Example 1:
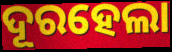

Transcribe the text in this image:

ଦୂରହେଲା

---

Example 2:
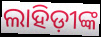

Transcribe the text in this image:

ଲାହିଡ଼ୀଙ୍କ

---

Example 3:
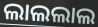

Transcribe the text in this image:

ଲାଲଲାଲ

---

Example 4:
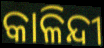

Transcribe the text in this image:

କାଳିନ୍ଦୀ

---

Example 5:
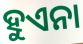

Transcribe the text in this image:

ହୁଏନା